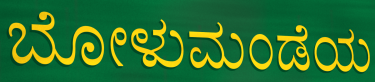
ಬೋಳುಮಂಡೆಯ